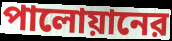
পালোয়ানের